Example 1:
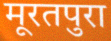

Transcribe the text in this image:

मूरतपुरा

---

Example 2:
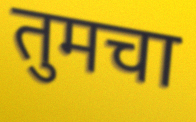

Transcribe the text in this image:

तुमचा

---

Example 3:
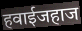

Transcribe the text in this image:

हवाईजहाज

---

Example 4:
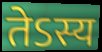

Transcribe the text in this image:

तेऽस्य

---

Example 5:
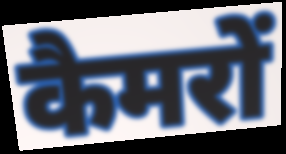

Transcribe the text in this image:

कैमरों